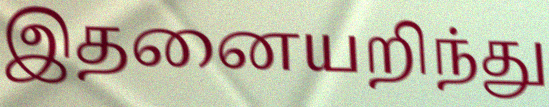
இதனையறிந்து